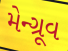
મેન્ગ્રૂવ